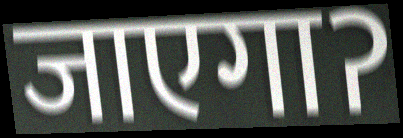
जाएगाॽ